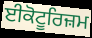
ਈਕੋਟੂਰਿਜ਼ਮ